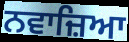
ਨਵਾਜ਼ਿਆ